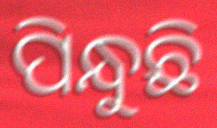
ପିନ୍ଧୁଛି